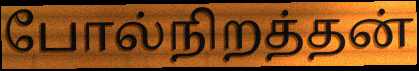
போல்நிறத்தன்